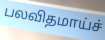
பலவிதமாய்ச்